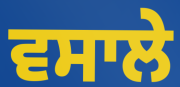
ਵਸਾਲੇ